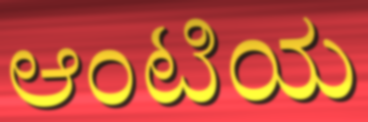
ಆಂಟಿಯ